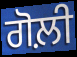
ਗੋਲ਼ੀ